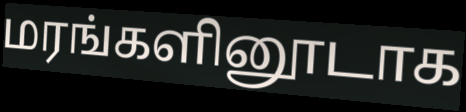
மரங்களினூடாக